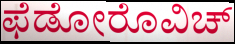
ಫೆಡೋರೊವಿಚ್